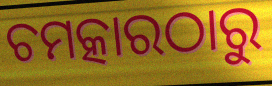
ଚମତ୍କାରଠାରୁ